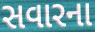
સવારના